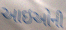
આઇઓની